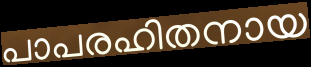
പാപരഹിതനായ